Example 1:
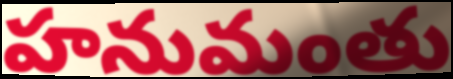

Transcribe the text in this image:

హనుమంతు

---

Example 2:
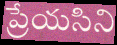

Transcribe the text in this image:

ప్రేయసిని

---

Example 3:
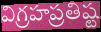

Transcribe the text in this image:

విగ్రహప్రతిష్ట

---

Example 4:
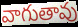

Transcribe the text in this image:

వాగుతావు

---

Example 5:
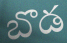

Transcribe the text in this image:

బొడ